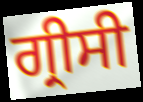
ਗ੍ਰੀਸੀ